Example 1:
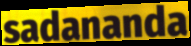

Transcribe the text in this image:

sadananda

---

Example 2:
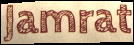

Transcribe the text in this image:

Jamrat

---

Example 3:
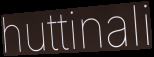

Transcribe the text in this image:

huttinali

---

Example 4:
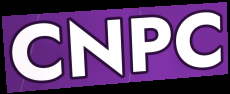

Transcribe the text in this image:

CNPC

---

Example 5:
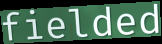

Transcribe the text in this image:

fielded